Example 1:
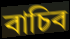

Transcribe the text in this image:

বাচিব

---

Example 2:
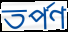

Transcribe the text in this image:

তৰ্পণ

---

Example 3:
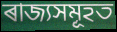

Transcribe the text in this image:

ৰাজ্যসমূহত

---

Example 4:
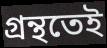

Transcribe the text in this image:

গ্ৰন্থতেই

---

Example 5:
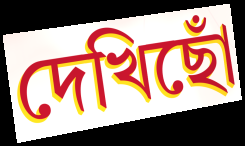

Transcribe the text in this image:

দেখিছোঁ